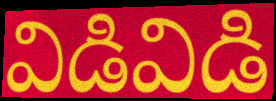
విడివిడి